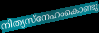
നിത്യസ്നേഹംകൊണ്ടു